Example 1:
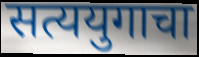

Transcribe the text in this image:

सत्ययुगाचा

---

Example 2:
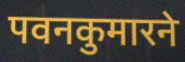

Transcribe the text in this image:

पवनकुमारने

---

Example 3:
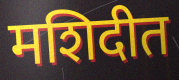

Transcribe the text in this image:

मशिदीत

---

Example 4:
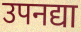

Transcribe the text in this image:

उपनद्या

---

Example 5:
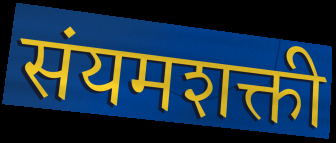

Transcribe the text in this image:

संयमशक्ती